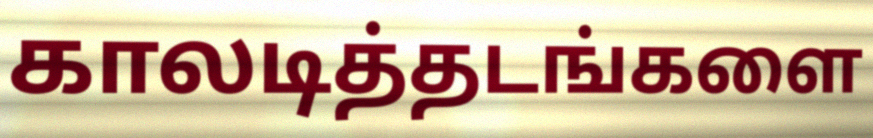
காலடித்தடங்களை